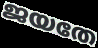
ജയതേ